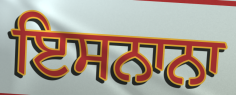
ਇਸਨਾਨਾ